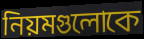
নিয়মগুলোকে